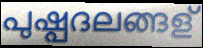
പുഷ്പദലങ്ങള്